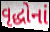
વૃદ્ધોનાં